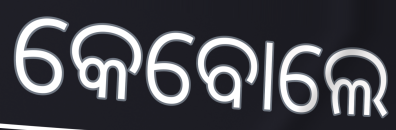
କେବୋଲେ